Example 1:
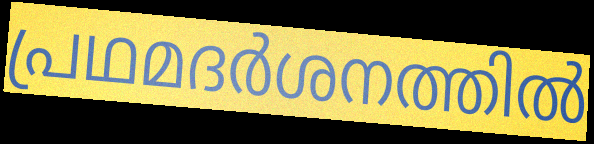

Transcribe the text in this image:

പ്രഥമദർശനത്തിൽ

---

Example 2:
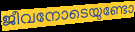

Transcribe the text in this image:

ജീവനോടെയുണ്ടോ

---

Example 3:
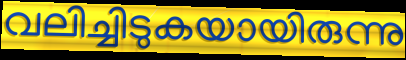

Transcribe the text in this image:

വലിച്ചിടുകയായിരുന്നു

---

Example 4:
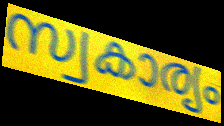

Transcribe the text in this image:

സ്വകാര്യം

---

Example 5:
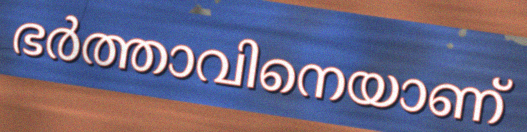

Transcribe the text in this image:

ഭർത്താവിനെയാണ്